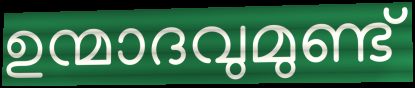
ഉന്മാദവുമുണ്ട്